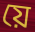
য়ে